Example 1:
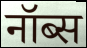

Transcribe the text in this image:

नॉब्स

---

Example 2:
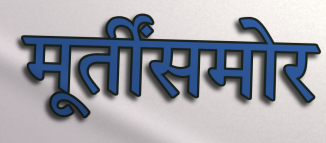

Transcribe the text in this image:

मूर्तींसमोर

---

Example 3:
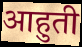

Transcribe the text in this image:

आहुती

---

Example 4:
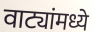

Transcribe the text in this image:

वाट्यांमध्ये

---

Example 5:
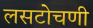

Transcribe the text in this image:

लसटोचणी